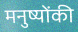
मनुष्योंकी